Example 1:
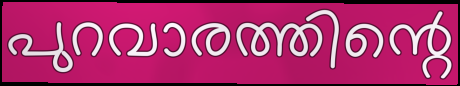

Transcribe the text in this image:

പുറവാരത്തിന്റെ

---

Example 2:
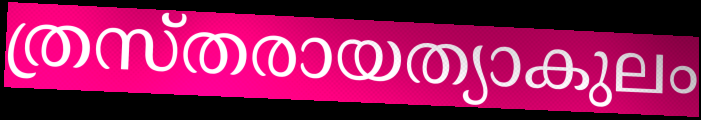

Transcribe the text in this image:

ത്രസ്തരായത്യാകുലം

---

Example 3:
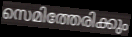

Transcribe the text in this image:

സെമിത്തേരിക്കും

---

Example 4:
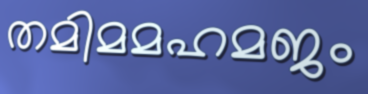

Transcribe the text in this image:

തമിമമഹമജം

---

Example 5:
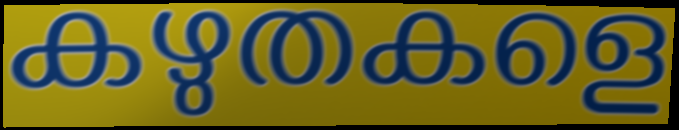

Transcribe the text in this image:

കഴുതകളെ